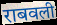
राबवली